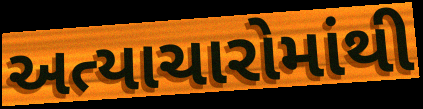
અત્યાચારોમાંથી